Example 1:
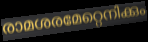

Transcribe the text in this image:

രാമശരമേറ്റെനിക്കും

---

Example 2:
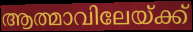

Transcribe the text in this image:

ആത്മാവിലേയ്ക്ക്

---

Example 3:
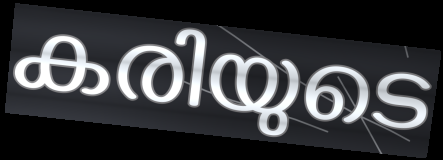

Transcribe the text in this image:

കരിയുടെ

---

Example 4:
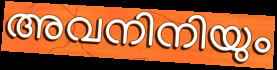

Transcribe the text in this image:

അവനിനിയും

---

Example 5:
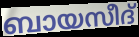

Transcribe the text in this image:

ബായസീദ്